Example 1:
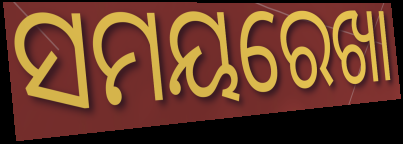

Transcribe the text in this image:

ସମୟରେଖା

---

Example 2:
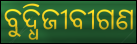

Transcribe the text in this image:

ବୁଦ୍ଧିଜୀବୀଗଣ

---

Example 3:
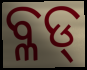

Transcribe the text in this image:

ବ୍ଳଡ୍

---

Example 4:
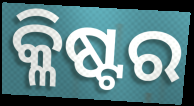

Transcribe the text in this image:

କ୍ଳିଷ୍ଟର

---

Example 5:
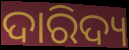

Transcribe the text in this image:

ଦାରିଦ୍ୟ